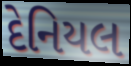
દેનિયલ